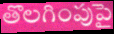
తొలగింపుపై